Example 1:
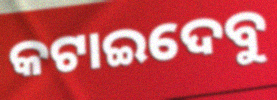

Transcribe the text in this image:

କଟାଇଦେବୁ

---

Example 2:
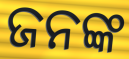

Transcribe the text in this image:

ଜନଙ୍କ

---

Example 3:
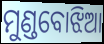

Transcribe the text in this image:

ମୁଣ୍ଡବୋଝିଆ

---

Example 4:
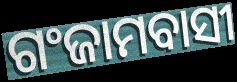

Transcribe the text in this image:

ଗଂଜାମବାସୀ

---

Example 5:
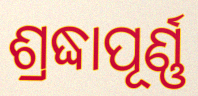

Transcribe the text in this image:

ଶ୍ରଦ୍ଧାପୂର୍ଣ୍ଣ